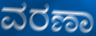
ವರಣಾ